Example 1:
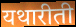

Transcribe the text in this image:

यथारीती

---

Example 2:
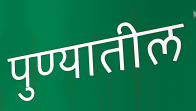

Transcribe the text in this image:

पुण्यातील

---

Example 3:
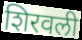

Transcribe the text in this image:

शिरवली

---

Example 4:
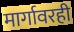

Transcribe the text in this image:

मार्गावरही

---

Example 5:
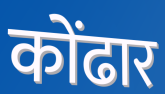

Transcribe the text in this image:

कोंढार